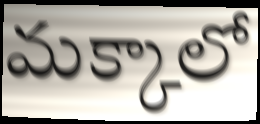
మక్కాలో